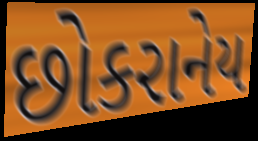
છોકરાનેય